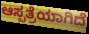
ಆಸ್ಪತ್ರೆಯಾಗಿದೆ